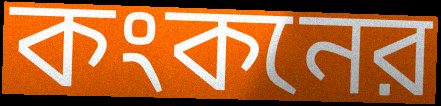
কংকনের